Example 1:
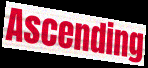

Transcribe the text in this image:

Ascending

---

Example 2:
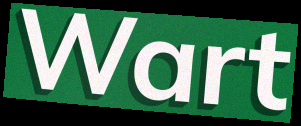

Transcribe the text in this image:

Wart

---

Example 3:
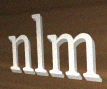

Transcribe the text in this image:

nlm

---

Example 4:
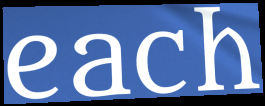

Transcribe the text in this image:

each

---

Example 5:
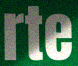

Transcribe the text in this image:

rte